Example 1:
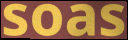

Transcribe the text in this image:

soas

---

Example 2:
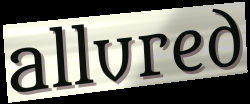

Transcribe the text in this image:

allured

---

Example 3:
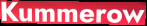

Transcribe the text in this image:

Kummerow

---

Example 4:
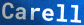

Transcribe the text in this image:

Carell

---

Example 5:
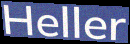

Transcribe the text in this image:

Heller